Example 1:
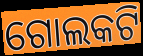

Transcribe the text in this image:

ଗୋଲକଟି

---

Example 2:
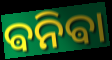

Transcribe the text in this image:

ଵନିଵା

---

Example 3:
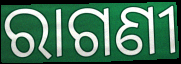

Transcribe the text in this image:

ରାଗଣୀ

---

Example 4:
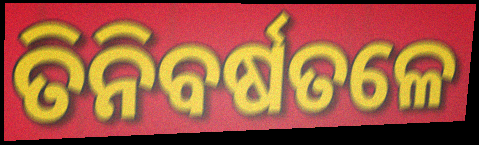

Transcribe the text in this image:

ତିନିବର୍ଷତଳେ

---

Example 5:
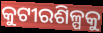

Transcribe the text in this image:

କୁଟୀରଶିଳ୍ପକୁ